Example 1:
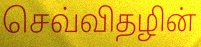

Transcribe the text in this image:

செவ்விதழின்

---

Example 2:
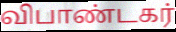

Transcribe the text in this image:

விபாண்டகர்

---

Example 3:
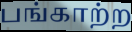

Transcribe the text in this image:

பங்காற்ற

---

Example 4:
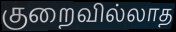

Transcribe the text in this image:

குறைவில்லாத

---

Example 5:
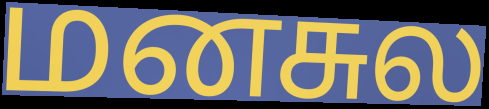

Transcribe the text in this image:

மனசுல